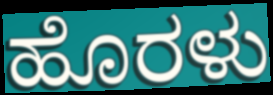
ಹೊರಳು